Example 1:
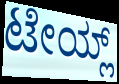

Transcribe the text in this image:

ಟೇಯ್ಲ್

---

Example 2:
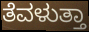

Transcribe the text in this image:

ತೆವಳುತ್ತಾ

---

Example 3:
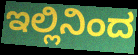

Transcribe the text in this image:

ಇಲ್ಲಿನಿಂದ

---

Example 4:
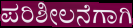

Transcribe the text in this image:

ಪರಿಶೀಲನೆಗಾಗಿ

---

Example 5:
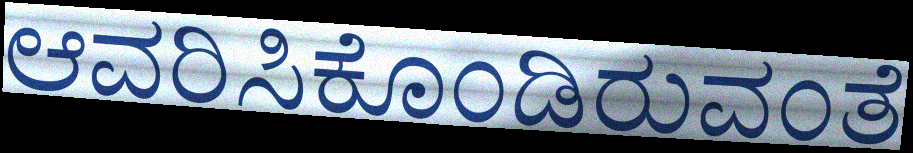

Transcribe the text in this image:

ಆವರಿಸಿಕೊಂಡಿರುವಂತೆ